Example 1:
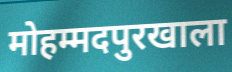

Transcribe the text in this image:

मोहम्मदपुरखाला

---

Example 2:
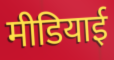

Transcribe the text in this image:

मीडियाई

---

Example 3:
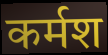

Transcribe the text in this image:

कर्मश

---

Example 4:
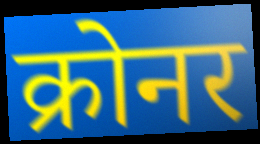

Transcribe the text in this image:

क्रोनर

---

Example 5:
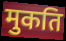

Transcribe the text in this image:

मुकति